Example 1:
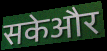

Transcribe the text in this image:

सकेऔर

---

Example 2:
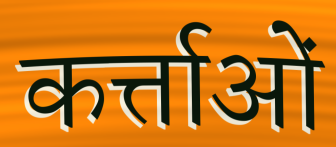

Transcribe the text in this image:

कर्त्ताओं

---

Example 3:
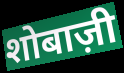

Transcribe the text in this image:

शोबाज़ी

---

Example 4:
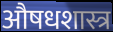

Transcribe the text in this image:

औषधशास्त्र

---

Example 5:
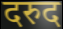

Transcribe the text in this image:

दरुद